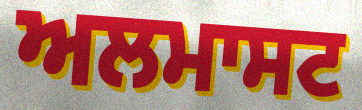
ਅਲਮਾਸਟ